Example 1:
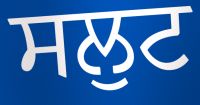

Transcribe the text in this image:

ਸਲੁਟ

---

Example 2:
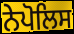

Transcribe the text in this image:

ਨੇਪੋਲਿਸ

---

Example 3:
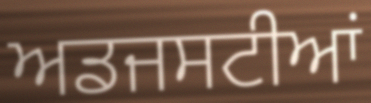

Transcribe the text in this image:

ਅਡਜਸਟੀਆਂ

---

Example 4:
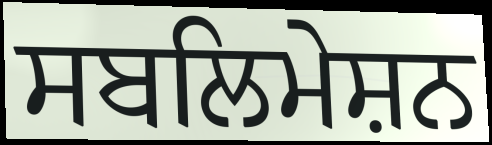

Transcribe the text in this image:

ਸਬਲਿਮੇਸ਼ਨ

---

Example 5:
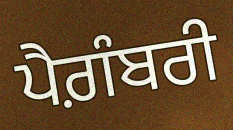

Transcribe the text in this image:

ਪੈਗ਼ੰਬਰੀ